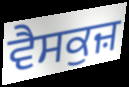
ਵੈਸਕੁਜ਼